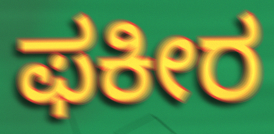
ಫಕೀರ